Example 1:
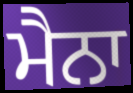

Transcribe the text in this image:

ਮੈਨਾ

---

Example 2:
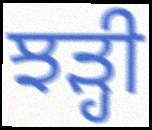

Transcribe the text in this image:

ਝੜ੍ਹੀ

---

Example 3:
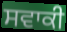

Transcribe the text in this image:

ਸਵਾਕੀ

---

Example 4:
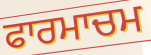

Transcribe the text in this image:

ਫਾਰਮਾਚਮ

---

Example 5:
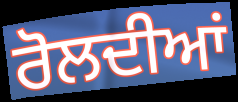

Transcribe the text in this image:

ਰੋਲਦੀਆਂ